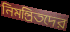
নিমন্ত্রিতদের